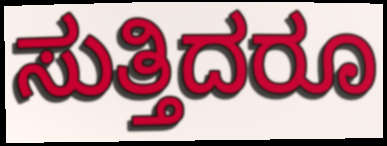
ಸುತ್ತಿದರೂ